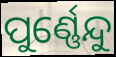
ପୁର୍ଣ୍ଣେନ୍ଦୁ